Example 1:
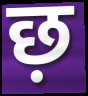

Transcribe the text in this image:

छ़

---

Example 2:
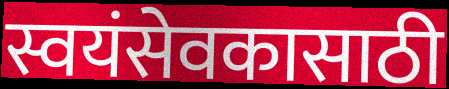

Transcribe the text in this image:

स्वयंसेवकासाठी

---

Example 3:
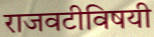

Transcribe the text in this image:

राजवटीविषयी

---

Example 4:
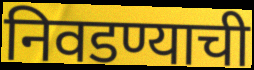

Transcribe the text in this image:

निवडण्याची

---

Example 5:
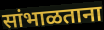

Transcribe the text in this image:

सांभाळताना